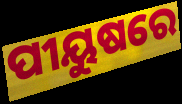
ପୀୟୁଷରେ